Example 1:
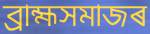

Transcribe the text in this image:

ব্ৰাহ্মসমাজৰ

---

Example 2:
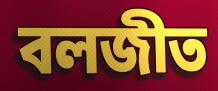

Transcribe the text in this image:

বলজীত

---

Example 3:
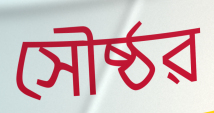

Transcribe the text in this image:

সৌষ্ঠৱ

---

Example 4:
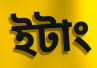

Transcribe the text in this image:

ইটাং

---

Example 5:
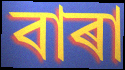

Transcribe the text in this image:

বাৰা